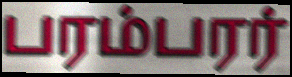
பரம்பரர்